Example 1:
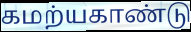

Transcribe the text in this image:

கமற்யகாண்டு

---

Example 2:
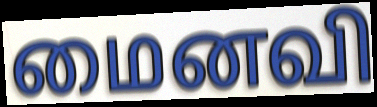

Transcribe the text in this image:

மைனவி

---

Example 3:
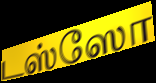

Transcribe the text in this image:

டஸ்ஸோ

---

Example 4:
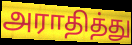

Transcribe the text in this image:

அராதித்து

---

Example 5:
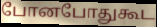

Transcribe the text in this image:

போனபோதுகூட